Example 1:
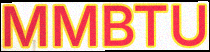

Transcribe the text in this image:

MMBTU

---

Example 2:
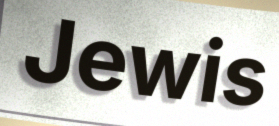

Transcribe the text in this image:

Jewis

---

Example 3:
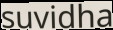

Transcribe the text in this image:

suvidha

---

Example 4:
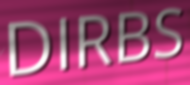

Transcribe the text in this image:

DIRBS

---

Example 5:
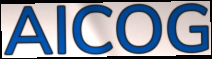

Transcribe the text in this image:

AICOG